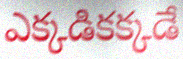
ఎక్కడికక్కడే